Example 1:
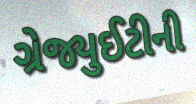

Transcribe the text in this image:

ગ્રેજ્યુઈટીની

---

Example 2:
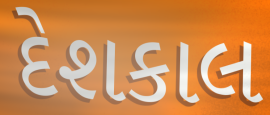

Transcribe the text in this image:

દેશકાલ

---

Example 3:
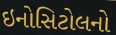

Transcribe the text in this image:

ઇનોસિટોલનો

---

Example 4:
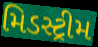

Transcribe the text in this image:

મિડસ્ટ્રીમ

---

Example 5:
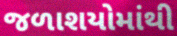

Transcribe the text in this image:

જળાશયોમાંથી